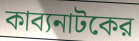
কাব্যনাটকের